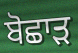
ਬੋਛਾੜ